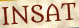
INSAT